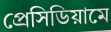
প্রেসিডিয়ামে